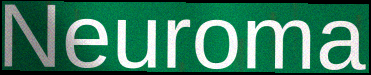
Neuroma